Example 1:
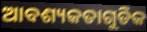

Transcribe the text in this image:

ଆବଶ୍ୟକତାଗୁଡିକ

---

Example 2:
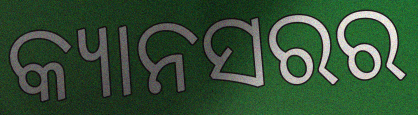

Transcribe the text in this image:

କ୍ୟାନସରର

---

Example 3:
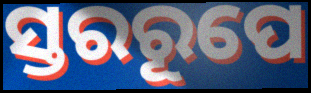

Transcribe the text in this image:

ସ୍ତରରୂପେ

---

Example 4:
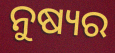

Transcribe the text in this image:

ନୁଷ୍ୟର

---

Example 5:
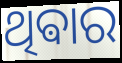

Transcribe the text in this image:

ଥିଵାର